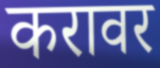
करावर